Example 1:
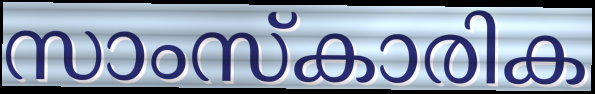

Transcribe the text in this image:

സാംസ്കാരിക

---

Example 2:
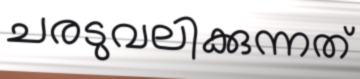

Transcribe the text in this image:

ചരടുവലിക്കുന്നത്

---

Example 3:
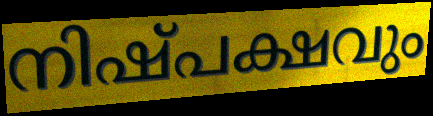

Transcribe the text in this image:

നിഷ്പക്ഷവും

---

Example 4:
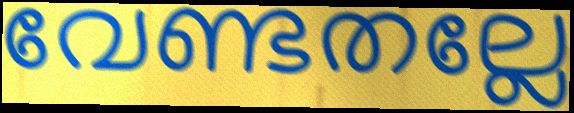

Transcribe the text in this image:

വേണ്ടതല്ലേ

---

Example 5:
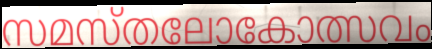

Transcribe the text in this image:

സമസ്തലോകോത്സവം